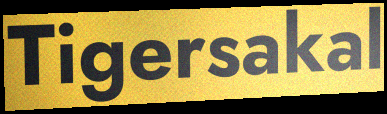
Tigersakal